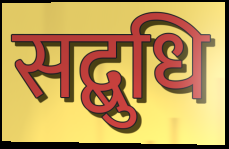
सद्बुधि